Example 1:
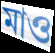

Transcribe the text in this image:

মাও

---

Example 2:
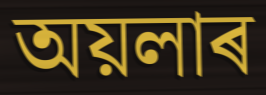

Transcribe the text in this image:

অয়লাৰ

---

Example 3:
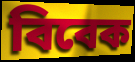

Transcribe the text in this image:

বিবেক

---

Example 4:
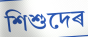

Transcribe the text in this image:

শিশুদেৰ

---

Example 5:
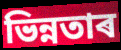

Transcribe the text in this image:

ভিন্নতাৰ